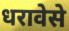
धरावेसे